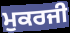
ਮੁਕਰਜੀ